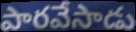
పారవేసాడు